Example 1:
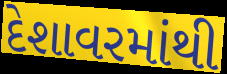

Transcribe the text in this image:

દેશાવરમાંથી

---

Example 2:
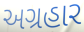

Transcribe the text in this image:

અગ્રહાર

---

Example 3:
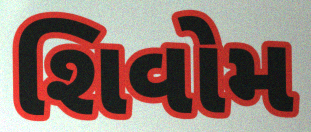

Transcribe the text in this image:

શિવોમ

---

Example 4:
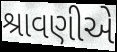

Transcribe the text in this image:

શ્રાવણીએ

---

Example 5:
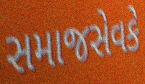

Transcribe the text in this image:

સમાજસેવકે